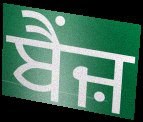
ਬੈਂਜ਼